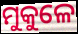
ମୁକୁଳେ